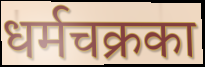
धर्मचक्रका